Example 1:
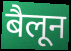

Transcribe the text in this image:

बैलून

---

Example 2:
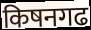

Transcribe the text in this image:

किषनगढ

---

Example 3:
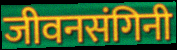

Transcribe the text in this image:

जीवनसंगिनी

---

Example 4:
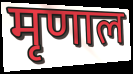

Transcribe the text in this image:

मृणाल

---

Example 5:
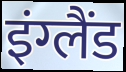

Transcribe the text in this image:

इंग्‍लैंड